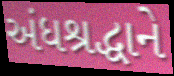
અંધશ્રદ્ધાને